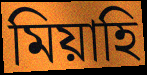
মিয়াহি